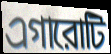
এগারোটি